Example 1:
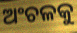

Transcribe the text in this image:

ଅଂଚଳକୁ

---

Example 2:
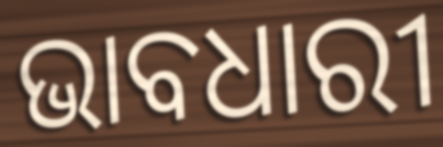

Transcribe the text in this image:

ଭାବଧାରୀ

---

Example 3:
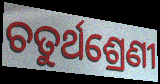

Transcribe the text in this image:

ଚତୁର୍ଥଶ୍ରେଣୀ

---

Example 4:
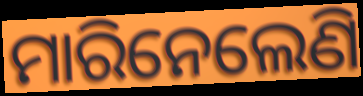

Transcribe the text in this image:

ମାରିନେଲେଣି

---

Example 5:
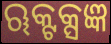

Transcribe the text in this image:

ୠକ୍ଟକ୍ସଜ୍ଞ